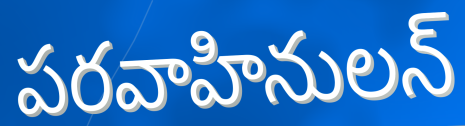
పరవాహినులన్